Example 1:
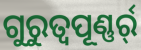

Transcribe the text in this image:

ଗୁରୁତ୍ୱପୂଣ୍ଣର୍ର୍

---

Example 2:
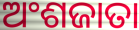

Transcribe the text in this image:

ଅଂଶଜାତା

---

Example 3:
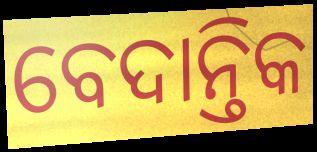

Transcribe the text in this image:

ବେଦାନ୍ତିକ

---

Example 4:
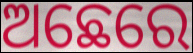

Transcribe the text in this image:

ଅଛେରେ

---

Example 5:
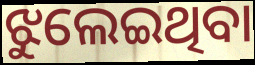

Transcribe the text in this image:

ଝୁଲେଇଥିବା